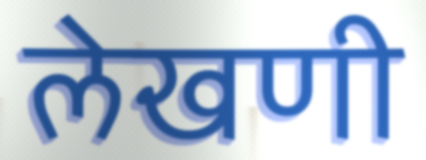
लेखणी